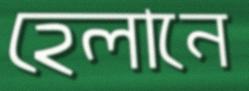
হেলানে